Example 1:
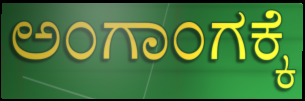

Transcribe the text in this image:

ಅಂಗಾಂಗಕ್ಕೆ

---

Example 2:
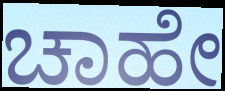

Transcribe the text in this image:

ಚಾಹೇ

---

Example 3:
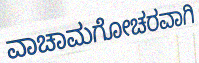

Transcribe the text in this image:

ವಾಚಾಮಗೋಚರವಾಗಿ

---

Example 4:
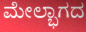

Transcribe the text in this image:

ಮೇಲ್ಭಾಗದ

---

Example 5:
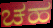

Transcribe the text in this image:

ಚಹ